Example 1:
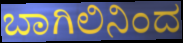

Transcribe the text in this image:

ಬಾಗಿಲಿನಿಂದ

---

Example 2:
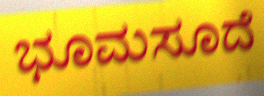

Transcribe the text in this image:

ಭೂಮಸೂದೆ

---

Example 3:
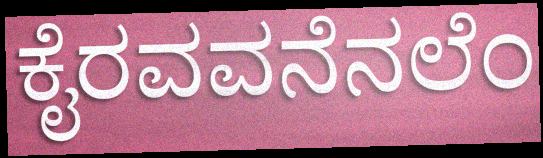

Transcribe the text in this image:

ಕೈರವವನೆನಲೆಂ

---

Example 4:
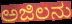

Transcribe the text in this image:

ಅಜಿಲನು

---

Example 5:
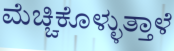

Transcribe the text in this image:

ಮೆಚ್ಚಿಕೊಳ್ಳುತ್ತಾಳೆ